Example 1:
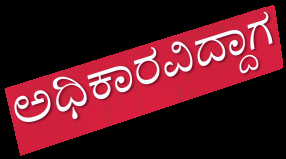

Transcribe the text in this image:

ಅಧಿಕಾರವಿದ್ದಾಗ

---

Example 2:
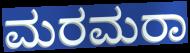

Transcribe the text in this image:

ಮರಮರಾ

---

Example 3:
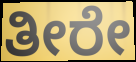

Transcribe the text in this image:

ತೀರೇ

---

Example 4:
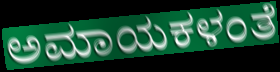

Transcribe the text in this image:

ಅಮಾಯಕಳಂತೆ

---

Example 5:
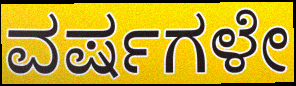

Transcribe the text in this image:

ವರ್ಷಗಳೇ